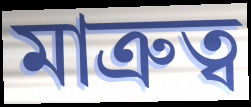
মাত্রুত্ব